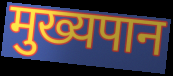
मुख्यपान